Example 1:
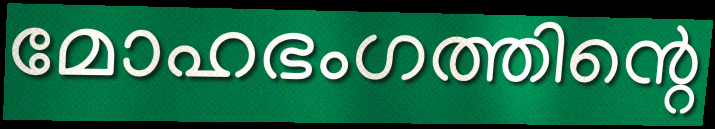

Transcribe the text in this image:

മോഹഭംഗത്തിന്റെ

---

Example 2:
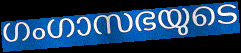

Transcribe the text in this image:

ഗംഗാസഭയുടെ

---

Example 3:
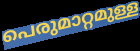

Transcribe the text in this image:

പെരുമാറ്റമുള്ള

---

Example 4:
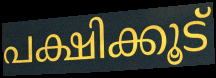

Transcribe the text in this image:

പക്ഷിക്കൂട്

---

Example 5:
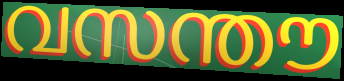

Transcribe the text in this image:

വസന്തൗ